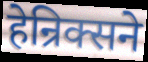
हेन्रिक्सने